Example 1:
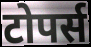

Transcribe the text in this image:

टोपर्स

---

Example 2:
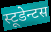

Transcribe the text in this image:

स्टूडेन्टस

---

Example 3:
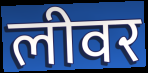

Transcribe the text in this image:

लीवर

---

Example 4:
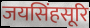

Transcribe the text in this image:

जयसिंहसूरि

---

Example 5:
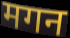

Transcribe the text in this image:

मगन